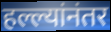
हल्ल्यांनंतर